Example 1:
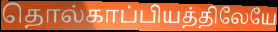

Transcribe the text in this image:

தொல்காப்பியத்திலேயே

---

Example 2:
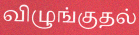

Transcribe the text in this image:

விழுங்குதல்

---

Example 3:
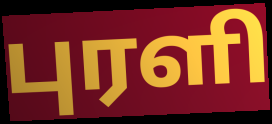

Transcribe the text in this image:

புரளி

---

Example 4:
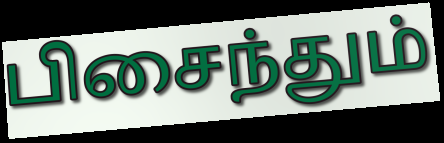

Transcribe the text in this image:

பிசைந்தும்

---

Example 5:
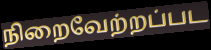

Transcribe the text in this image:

நிறைவேற்றப்பட